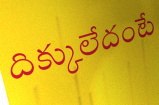
దిక్కులేదంటే